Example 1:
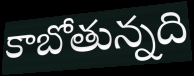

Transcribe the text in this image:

కాబోతున్నది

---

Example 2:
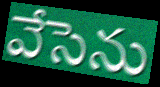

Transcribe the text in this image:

వేసెను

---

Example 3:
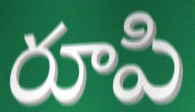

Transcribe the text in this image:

రూపి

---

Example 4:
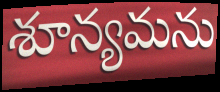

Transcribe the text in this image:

శూన్యమను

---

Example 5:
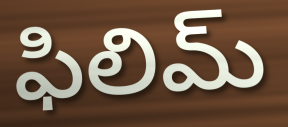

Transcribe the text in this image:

ఫిలిమ్